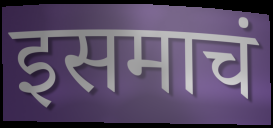
इसमाचं